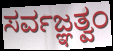
ಸರ್ವಜ್ಞತ್ವಂ